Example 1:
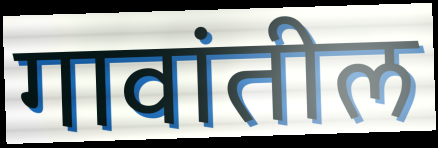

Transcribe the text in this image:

गावांतील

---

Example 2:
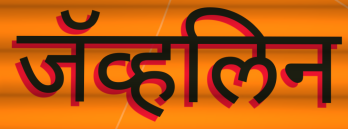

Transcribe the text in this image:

जॅव्हलिन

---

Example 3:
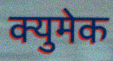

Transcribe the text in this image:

क्युमेक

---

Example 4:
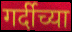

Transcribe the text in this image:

गर्दीच्या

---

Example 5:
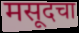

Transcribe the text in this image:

मसूदचा